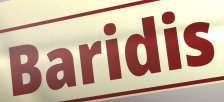
Baridis